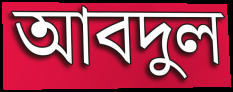
আবদুল